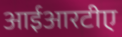
आईआरटीए